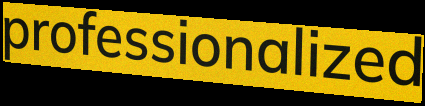
professionalized